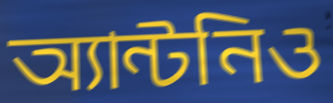
অ্যান্টনিও